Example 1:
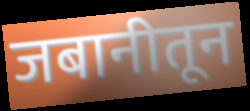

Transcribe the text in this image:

जबानीतून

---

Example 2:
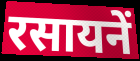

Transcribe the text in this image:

रसायनें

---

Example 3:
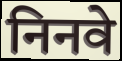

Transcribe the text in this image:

निनवे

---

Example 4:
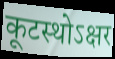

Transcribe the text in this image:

कूटस्थोऽक्षर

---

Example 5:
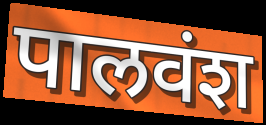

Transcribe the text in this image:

पालवंश